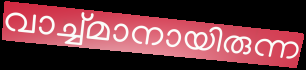
വാച്ച്മാനായിരുന്ന